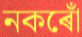
নকৰোঁ